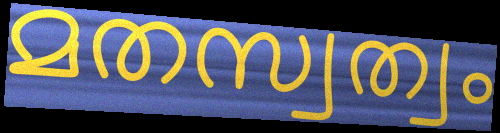
മതസ്വത്വം